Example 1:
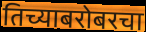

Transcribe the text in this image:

तिच्याबरोबरचा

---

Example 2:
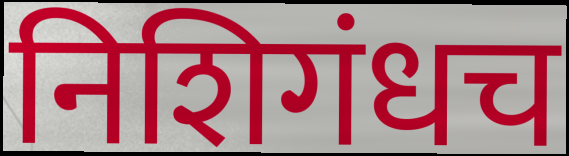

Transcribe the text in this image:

निशिगंधच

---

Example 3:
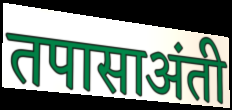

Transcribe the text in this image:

तपासाअंती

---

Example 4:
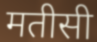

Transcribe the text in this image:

मतीसी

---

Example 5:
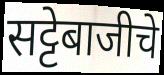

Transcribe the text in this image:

सट्टेबाजीचे